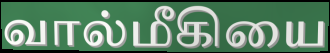
வால்மீகியை